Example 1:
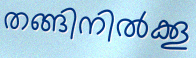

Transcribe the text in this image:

തങ്ങിനിൽക്കൂ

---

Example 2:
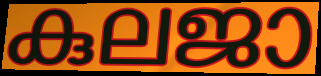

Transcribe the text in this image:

കുലജാ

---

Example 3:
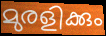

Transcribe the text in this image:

മുരളിക്കും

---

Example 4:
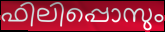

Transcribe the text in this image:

ഫിലിപ്പൊസും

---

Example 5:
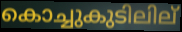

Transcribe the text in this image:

കൊച്ചുകുടിലില്